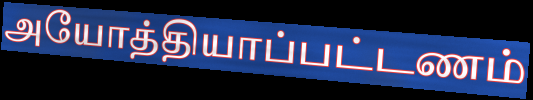
அயோத்தியாப்பட்டணம்